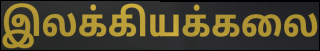
இலக்கியக்கலை